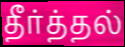
தீர்த்தல்